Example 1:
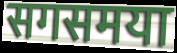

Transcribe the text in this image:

सगसमया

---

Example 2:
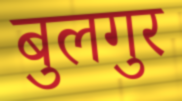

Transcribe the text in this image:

बुलगुर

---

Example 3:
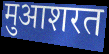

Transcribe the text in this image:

मुआशरत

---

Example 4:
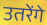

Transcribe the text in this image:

उतरेंगे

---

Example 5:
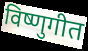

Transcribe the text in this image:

विष्णुगीत